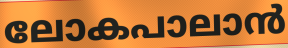
ലോകപാലാൻ